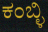
ಕಂಬ್ಳಿ